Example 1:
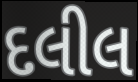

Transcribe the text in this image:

દલીલ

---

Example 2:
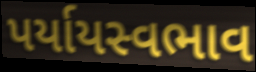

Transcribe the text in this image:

પર્યાયસ્વભાવ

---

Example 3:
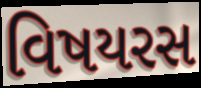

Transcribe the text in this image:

વિષયરસ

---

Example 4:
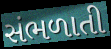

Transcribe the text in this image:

સંભળાતી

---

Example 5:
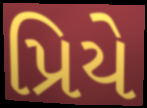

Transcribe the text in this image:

પ્રિયે